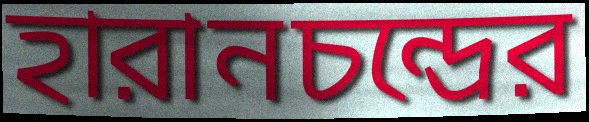
হারানচন্দ্রের